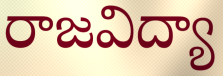
రాజవిద్యా